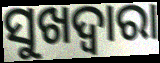
ସୁଖଦ୍ଵାରା